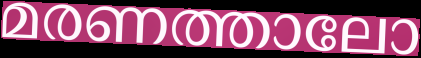
മരണത്താലോ